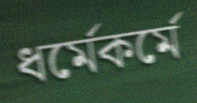
ধর্মেকর্মে